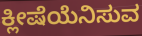
ಕ್ಲೀಷೆಯೆನಿಸುವ